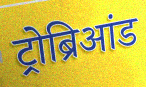
ट्रोब्रिआंड